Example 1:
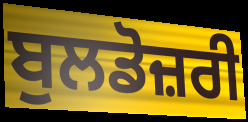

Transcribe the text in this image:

ਬੁਲਡੋਜ਼ਰੀ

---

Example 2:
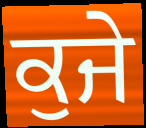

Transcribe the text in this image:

ਕੁਜੇ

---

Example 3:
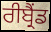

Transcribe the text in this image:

ਰੀਬ੍ਰੈਂਡ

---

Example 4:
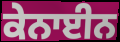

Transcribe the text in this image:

ਕੇਨਾਈਨ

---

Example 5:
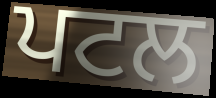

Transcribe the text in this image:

ਪਟਲ